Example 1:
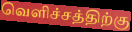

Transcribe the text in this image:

வெளிச்சத்திற்கு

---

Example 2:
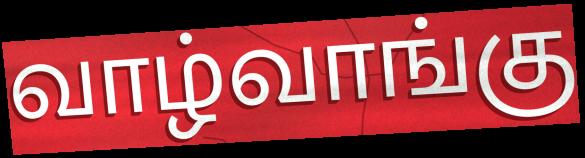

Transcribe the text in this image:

வாழ்வாங்கு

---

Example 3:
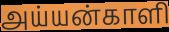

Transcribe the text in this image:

அய்யன்காளி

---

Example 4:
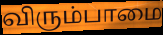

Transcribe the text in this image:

விரும்பாமை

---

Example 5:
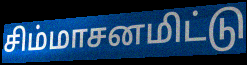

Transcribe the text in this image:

சிம்மாசனமிட்டு